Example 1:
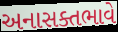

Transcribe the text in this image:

અનાસક્તભાવે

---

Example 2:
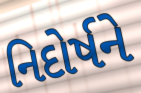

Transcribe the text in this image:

નિદોર્ષને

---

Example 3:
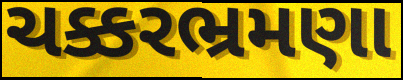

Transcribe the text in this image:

ચક્કરભ્રમણા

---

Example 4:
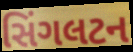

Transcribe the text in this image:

સિંગલટન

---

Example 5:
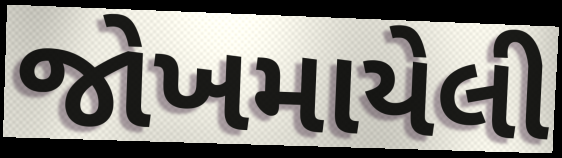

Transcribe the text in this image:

જોખમાયેલી